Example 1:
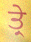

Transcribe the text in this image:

ਤ੍ਰੇ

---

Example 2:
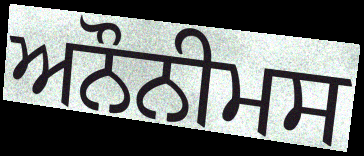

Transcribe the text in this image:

ਅਨੌਨੀਮਸ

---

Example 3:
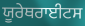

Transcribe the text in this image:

ਯੂਰੇਥਰਾਈਟਸ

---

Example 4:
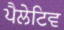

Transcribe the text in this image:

ਪੈਲੇਟਿਵ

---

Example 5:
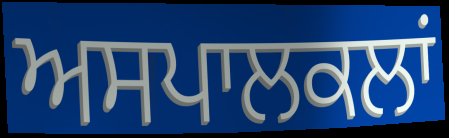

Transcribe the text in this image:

ਅਸਪਾਲਕਲਾਂ